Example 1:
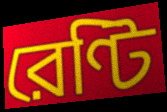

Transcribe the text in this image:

রেণ্টি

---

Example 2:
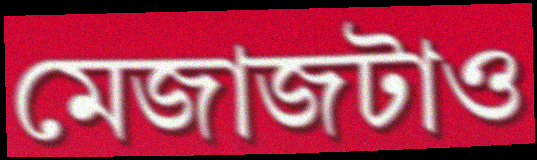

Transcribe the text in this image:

মেজাজটাও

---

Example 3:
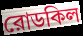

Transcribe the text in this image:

রোডকিল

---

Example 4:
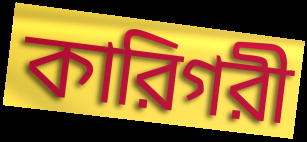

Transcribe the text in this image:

কারিগরী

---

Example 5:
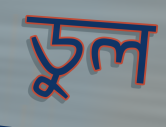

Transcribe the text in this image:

ডুল